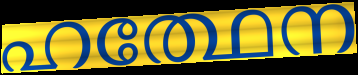
ഹത്ഥേന